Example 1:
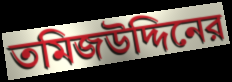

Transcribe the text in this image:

তমিজউদ্দিনের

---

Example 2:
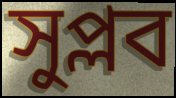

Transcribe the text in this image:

সুপ্লব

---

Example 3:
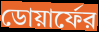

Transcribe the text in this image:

ডোয়ার্ফের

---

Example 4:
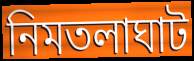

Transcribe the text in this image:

নিমতলাঘাট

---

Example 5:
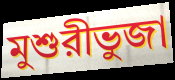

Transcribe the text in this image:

মুশুরীভুজা